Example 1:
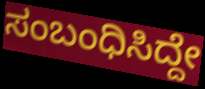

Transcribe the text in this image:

ಸಂಬಂಧಿಸಿದ್ದೇ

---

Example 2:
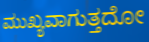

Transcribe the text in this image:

ಮುಖ್ಯವಾಗುತ್ತದೋ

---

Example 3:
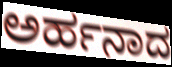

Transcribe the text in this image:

ಅರ್ಹನಾದ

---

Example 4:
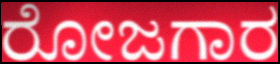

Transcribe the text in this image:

ರೋಜಗಾರ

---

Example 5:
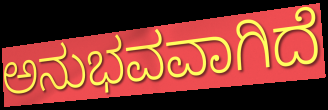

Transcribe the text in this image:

ಅನುಭವವಾಗಿದೆ